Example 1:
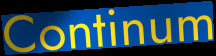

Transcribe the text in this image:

Continum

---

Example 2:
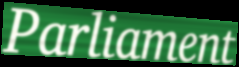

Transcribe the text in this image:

Parliament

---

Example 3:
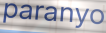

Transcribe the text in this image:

paranyo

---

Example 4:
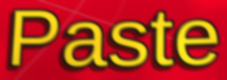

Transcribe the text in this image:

Paste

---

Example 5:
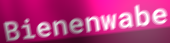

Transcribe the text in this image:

Bienenwabe